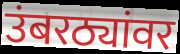
उंबरठ्यांवर